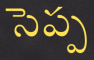
సెప్ప